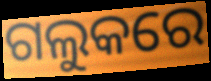
ଗଲୁକରେ